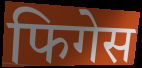
फिगेस